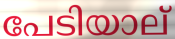
പേടിയാല്